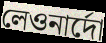
লেওনার্দো